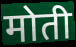
मोती